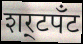
शर्टपॅंट